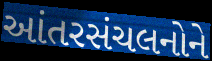
આંતરસંચલનોને